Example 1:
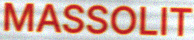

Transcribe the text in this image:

MASSOLIT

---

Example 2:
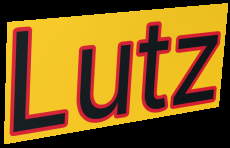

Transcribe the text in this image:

Lutz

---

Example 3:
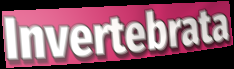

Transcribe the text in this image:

Invertebrata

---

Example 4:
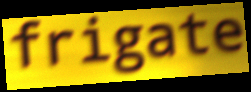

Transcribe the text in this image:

frigate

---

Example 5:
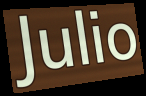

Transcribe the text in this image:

Julio